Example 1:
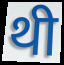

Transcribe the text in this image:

थी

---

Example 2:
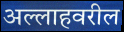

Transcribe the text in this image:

अल्लाहवरील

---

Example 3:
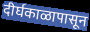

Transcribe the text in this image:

दीर्घकाळापासून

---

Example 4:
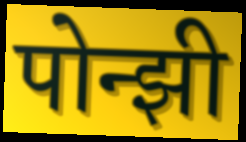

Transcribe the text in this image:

पोन्झी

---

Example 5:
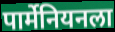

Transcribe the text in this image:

पार्मेनियनला